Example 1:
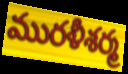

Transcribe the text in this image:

మురళీశర్మ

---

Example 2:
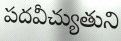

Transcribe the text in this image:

పదవీచ్యుతుని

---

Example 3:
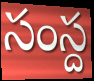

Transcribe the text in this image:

సంస్ద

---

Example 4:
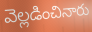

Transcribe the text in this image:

వెల్లడించినారు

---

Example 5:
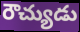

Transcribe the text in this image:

రౌచ్యుడు